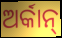
ଅର୍କାନ୍